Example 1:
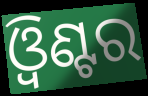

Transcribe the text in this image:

ଓ୍ଵିଣ୍ଟର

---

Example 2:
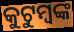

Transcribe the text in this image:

କୁଟୁମ୍ବଙ୍କ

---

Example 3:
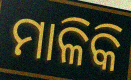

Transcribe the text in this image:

ମାଳିକି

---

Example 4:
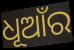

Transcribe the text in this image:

ଧୂଆଁର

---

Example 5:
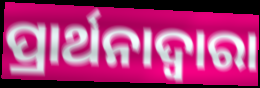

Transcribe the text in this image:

ପ୍ରାର୍ଥନାଦ୍ଵାରା